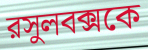
রসুলবক্সকে